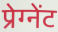
प्रेग्नेंट